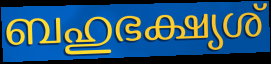
ബഹുഭക്ഷ്യശ്